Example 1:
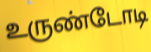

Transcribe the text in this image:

உருண்டோடி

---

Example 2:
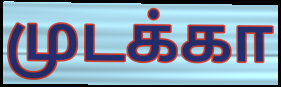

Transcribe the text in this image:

முடக்கா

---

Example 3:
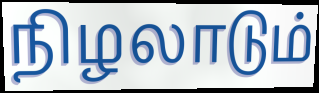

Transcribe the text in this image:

நிழலாடும்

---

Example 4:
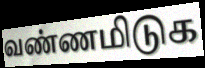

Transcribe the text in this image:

வண்ணமிடுக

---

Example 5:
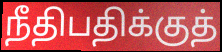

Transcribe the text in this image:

நீதிபதிக்குத்